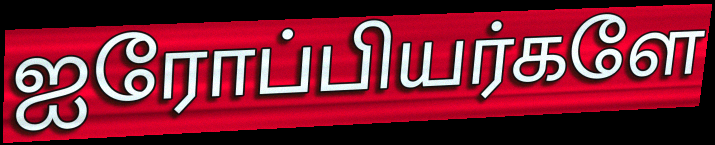
ஐரோப்பியர்களே